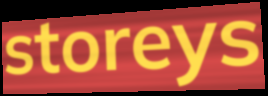
storeys